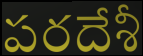
పరదేశీ